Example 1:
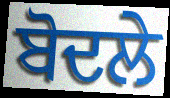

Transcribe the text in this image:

ਬੋਦਲੇ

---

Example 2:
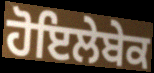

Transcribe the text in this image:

ਹੋਇਲੇਬੇਕ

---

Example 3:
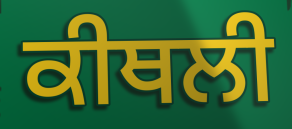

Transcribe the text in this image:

ਕੀਥਲੀ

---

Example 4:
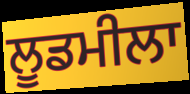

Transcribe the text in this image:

ਲੂਡਮੀਲਾ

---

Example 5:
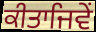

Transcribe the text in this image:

ਕੀਤਾਜਿਵੇਂ